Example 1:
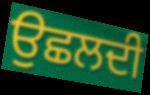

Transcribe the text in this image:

ਉਛਲਦੀ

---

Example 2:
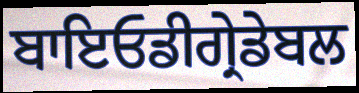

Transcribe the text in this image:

ਬਾਇਓਡੀਗ੍ਰੇਡੇਬਲ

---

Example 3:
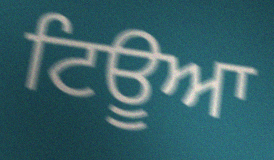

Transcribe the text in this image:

ਟਿਊਆ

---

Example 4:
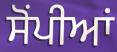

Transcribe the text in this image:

ਸੋਂਪੀਆਂ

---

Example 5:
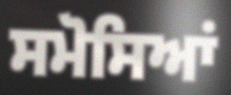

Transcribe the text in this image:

ਸਮੋਸਿਆਂ